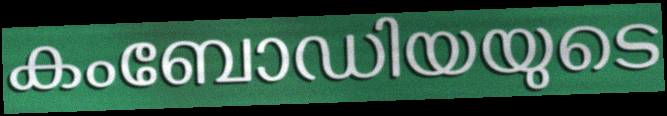
കംബോഡിയയുടെ